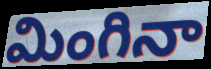
మింగినా